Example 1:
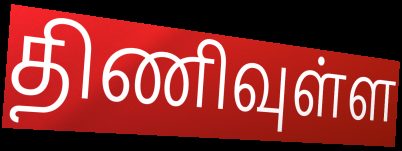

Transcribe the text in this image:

திணிவுள்ள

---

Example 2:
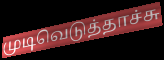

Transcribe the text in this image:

முடிவெடுத்தாச்சு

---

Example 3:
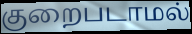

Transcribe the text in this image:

குறைபடாமல்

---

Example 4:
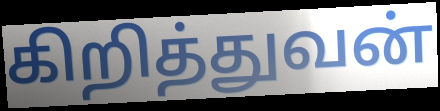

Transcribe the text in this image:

கிறித்துவன்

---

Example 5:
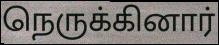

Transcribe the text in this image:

நெருக்கினார்